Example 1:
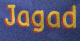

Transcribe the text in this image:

Jagad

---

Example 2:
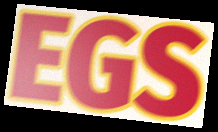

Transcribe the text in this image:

EGS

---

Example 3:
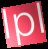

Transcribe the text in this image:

Ipl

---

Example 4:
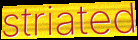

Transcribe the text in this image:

striated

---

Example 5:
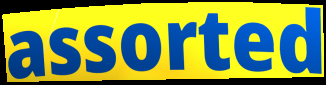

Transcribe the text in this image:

assorted